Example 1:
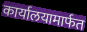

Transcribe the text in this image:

कार्यालयामार्फत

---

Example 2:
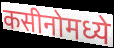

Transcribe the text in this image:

कसीनोमध्ये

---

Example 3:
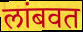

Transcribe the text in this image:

लांबवत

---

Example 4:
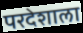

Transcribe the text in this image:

परदेशाला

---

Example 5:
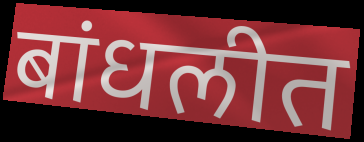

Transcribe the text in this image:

बांधलीत